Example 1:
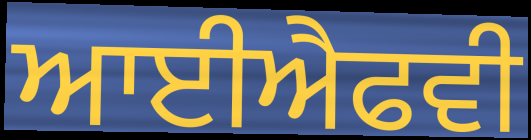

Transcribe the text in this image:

ਆਈਐਫਵੀ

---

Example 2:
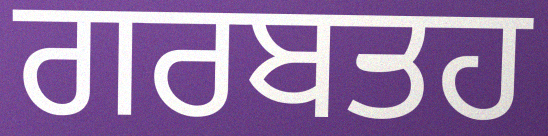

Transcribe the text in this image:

ਗਰਬਤਹ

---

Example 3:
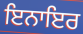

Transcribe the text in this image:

ਇਨਾਇਰ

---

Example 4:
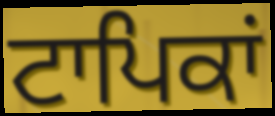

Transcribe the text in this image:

ਟਾਪਿਕਾਂ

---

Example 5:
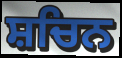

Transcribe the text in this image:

ਸ਼ਚਿਨ